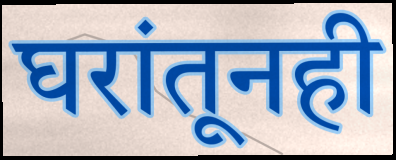
घरांतूनही